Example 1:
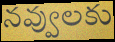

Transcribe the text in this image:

నవ్వులకు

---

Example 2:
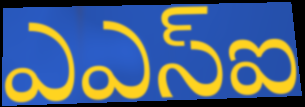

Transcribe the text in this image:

ఎఎస్ఐ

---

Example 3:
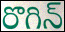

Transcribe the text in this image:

రొగిన్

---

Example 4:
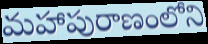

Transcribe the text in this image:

మహాపురాణంలోని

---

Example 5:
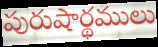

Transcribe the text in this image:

పురుషార్థములు